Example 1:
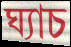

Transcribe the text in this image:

ঘ্যাচ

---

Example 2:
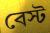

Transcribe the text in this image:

বেস্ট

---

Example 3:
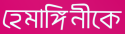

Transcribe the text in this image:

হেমাঙ্গিনীকে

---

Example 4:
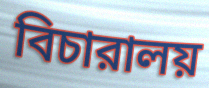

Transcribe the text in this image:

বিচারালয়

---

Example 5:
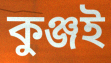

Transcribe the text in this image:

কুঞ্জই